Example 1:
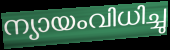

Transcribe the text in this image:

ന്യായംവിധിച്ചു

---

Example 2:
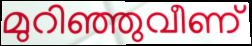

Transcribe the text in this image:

മുറിഞ്ഞുവീണ്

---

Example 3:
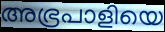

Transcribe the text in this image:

അഭ്രപാളിയെ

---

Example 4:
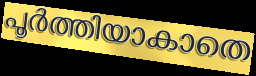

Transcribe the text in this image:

പൂർത്തിയാകാതെ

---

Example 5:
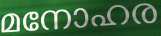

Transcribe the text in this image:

മനോഹര